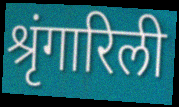
श्रृंगारिली